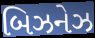
બિઝનેઝ